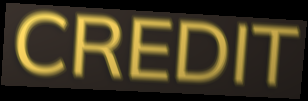
CREDIT